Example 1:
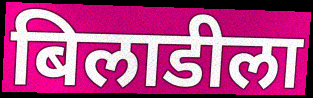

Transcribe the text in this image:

बिलाडीला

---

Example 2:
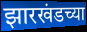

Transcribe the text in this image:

झारखंडच्या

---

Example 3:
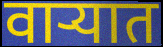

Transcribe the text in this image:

वाऱ्यात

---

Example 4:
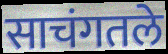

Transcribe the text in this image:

साचंगतले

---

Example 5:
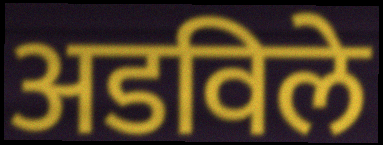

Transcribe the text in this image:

अडविले